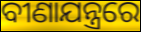
ବୀଣାଯନ୍ତ୍ରରେ